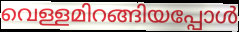
വെള്ളമിറങ്ങിയപ്പോൾ